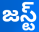
జస్ట్